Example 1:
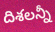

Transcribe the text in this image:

దిశలన్నీ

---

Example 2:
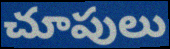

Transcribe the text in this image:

చూపులు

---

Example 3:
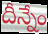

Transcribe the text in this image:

దీన్నేం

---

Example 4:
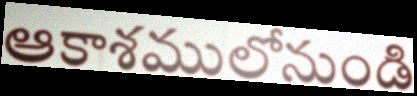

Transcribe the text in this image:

ఆకాశములోనుండి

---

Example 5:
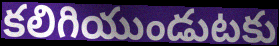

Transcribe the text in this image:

కలిగియుండుటకు